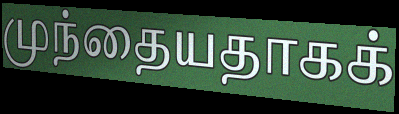
முந்தையதாகக்